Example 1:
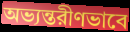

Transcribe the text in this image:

অভ্যন্তরীণভাবে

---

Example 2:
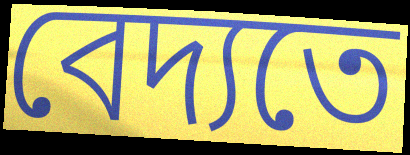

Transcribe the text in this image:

বেদ্যতে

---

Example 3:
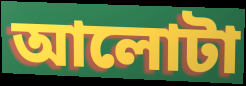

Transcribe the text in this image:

আলোটা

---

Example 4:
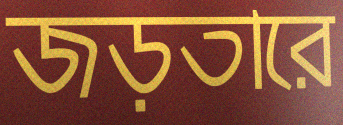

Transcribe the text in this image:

জড়তারে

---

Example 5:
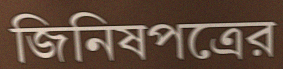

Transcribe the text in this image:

জিনিষপত্রের